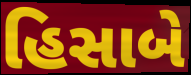
હિસાબે